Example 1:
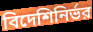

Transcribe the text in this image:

বিদেশিনির্ভর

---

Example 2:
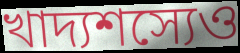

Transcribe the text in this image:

খাদ্যশস্যেও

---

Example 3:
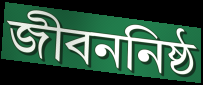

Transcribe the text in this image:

জীবননিষ্ঠ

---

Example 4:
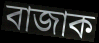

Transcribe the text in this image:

বাজাক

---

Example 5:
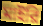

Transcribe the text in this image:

মাইরি